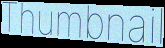
Thumbnail